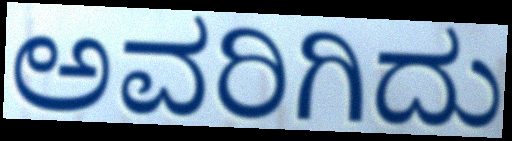
ಅವರಿಗಿದು